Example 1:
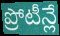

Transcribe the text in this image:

ప్రోటీన్లే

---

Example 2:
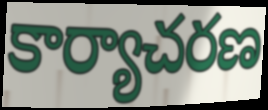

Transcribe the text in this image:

కార్యాచరణ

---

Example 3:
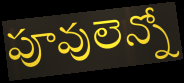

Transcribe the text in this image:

పూవులెన్నో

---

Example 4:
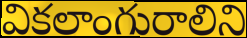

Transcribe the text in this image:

వికలాంగురాలిని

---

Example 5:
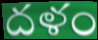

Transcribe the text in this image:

దళం